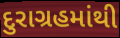
દુરાગ્રહમાંથી